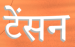
टेंसन